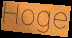
Hoge